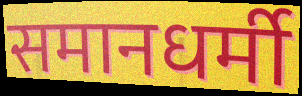
समानधर्मी